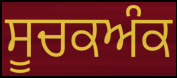
ਸੂਚਕਅੰਕ